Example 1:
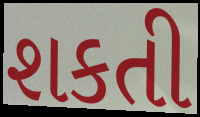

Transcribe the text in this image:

શકતી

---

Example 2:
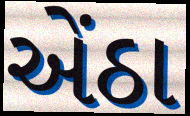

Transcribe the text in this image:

એંઠા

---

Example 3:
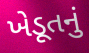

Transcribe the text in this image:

ખેડૂતનું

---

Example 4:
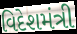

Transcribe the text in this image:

વિદેશમંત્રી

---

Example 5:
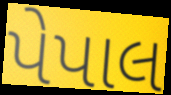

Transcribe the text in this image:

પેપાલ